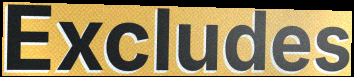
Excludes